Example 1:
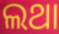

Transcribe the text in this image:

ଲଥା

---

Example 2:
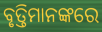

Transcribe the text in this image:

ବୃତ୍ତିମାନଙ୍କରେ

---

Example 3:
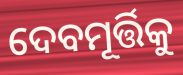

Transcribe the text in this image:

ଦେବମୂର୍ତ୍ତିକୁ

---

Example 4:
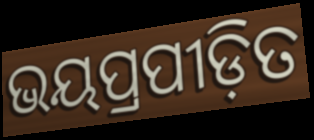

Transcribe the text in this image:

ଭୟପ୍ରପୀଡ଼ିତ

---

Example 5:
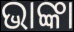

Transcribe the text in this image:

ଭାଙ୍କା